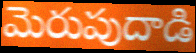
మెరుపుదాడి